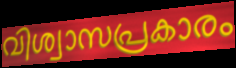
വിശ്വാസപ്രകാരം